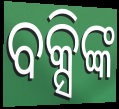
ବକ୍ସିଙ୍କ